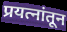
प्रयत्नांतून